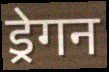
ड्रेगन